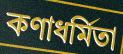
কণাধর্মিতা